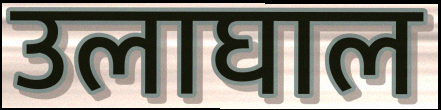
उलाघाल